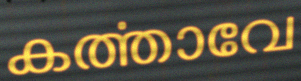
കൎത്താവേ